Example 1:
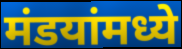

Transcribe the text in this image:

मंडयांमध्ये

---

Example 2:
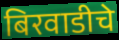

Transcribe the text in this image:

बिरवाडीचे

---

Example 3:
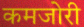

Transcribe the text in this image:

कमजोरी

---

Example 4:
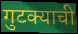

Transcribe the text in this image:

गुटक्याची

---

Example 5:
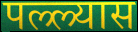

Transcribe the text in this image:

पल्ल्यास